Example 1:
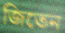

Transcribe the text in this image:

জিতেন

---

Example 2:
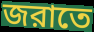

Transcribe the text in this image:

জরাতে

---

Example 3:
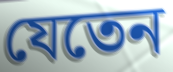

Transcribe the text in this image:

যেতেন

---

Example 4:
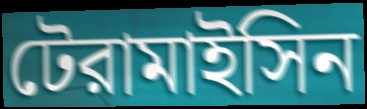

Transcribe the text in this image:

টেরামাইসিন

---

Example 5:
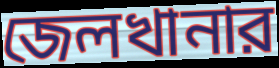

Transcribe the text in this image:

জেলখানার